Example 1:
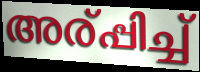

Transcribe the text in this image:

അര്പ്പിച്ച്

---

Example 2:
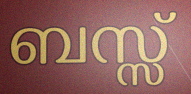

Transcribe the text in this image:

ബസ്സ്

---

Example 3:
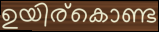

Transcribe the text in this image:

ഉയിര്കൊണ്ട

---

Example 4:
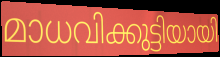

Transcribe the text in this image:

മാധവിക്കുട്ടിയായി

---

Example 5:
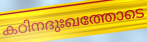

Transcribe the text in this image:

കഠിനദുഃഖത്തോടെ